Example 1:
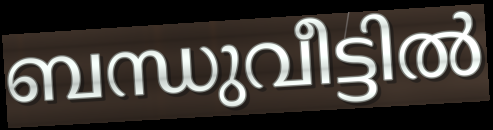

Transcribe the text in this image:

ബന്ധുവീട്ടിൽ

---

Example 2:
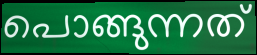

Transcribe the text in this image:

പൊങ്ങുന്നത്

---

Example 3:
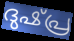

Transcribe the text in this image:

ദുഷ്‌പ്ര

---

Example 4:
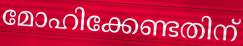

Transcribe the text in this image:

മോഹിക്കേണ്ടതിന്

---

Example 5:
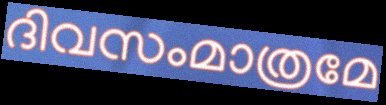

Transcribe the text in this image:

ദിവസംമാത്രമേ